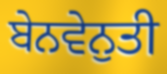
ਬੇਨਵੇਨੁਤੀ